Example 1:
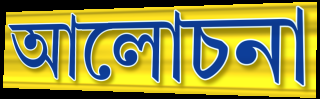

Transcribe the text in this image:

আলোচনা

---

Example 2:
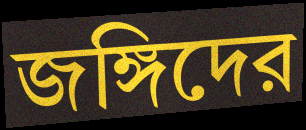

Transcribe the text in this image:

জঙ্গিদের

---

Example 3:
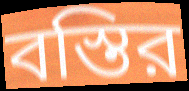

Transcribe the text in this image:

বস্তির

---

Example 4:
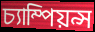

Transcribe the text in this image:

চ্যাম্পিয়ন্স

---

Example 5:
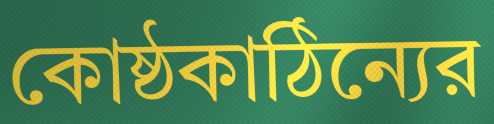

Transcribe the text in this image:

কোষ্ঠকাঠিন্যের